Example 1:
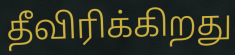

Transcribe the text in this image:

தீவிரிக்கிறது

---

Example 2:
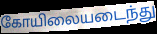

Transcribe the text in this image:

கோயிலையடைந்து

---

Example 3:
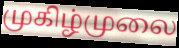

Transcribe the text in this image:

முகிழ்முலை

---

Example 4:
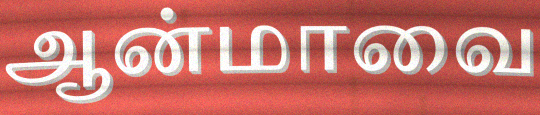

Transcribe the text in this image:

ஆன்மாவை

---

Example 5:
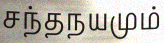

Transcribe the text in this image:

சந்தநயமும்